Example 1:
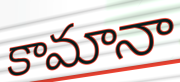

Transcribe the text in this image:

కామానా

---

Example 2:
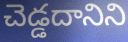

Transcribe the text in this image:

చెడ్డదానిని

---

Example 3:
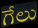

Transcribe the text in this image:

గేలు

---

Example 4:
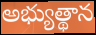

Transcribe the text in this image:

అభ్యుత్థాన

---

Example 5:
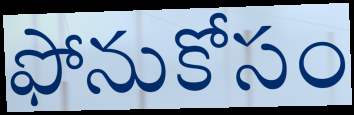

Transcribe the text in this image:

ఫోనుకోసం